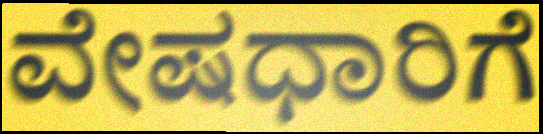
ವೇಷಧಾರಿಗೆ